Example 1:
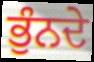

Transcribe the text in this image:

ਭੁੰਨਦੇ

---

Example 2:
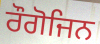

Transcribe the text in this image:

ਰੌਗੋਜਿਨ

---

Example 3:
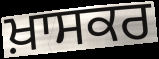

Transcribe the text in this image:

ਖ਼ਾਸਕਰ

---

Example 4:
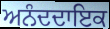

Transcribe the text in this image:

ਅਨੰਦਦਾਇਕ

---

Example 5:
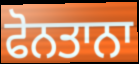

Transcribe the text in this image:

ਫੋਨਤਾਨਾ